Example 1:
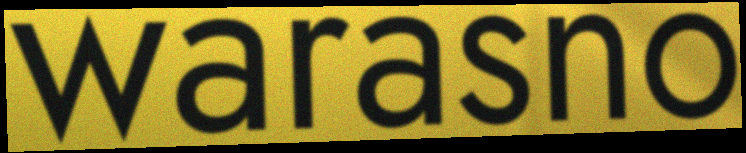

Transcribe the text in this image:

warasno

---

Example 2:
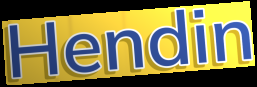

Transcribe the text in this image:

Hendin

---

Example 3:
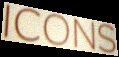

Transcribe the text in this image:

ICONS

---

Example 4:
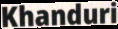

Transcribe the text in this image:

Khanduri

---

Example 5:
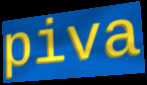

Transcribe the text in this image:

piva